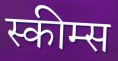
स्कीम्स